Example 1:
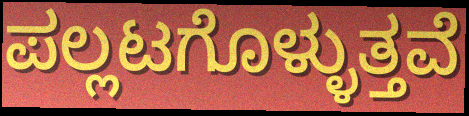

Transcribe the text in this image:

ಪಲ್ಲಟಗೊಳ್ಳುತ್ತವೆ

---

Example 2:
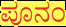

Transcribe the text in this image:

ಪೂನಂ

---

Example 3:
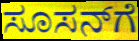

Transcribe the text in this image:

ಸೂಸನ್‌ಗೆ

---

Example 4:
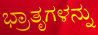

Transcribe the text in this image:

ಭ್ರಾತೃಗಳನ್ನು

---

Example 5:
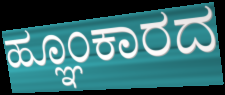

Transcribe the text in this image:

ಹ್ಞೂಂಕಾರದ